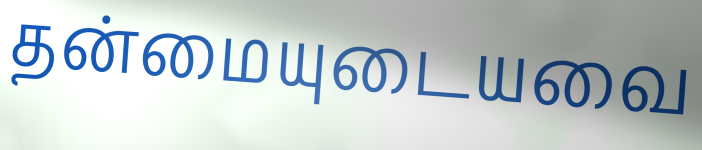
தன்மையுடையவை